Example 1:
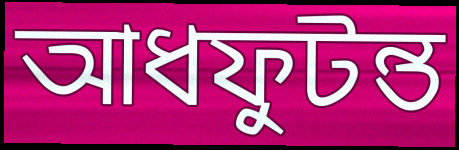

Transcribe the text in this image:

আধফুটন্ত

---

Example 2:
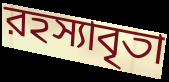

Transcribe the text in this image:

রহস্যাবৃতা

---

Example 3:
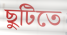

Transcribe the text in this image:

ছুটিতে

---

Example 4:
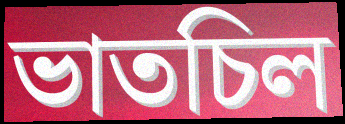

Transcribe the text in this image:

ভাতচিল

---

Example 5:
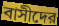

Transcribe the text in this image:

বাসীদের